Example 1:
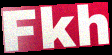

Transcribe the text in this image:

Fkh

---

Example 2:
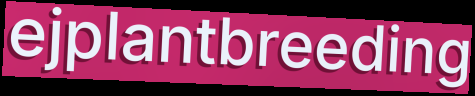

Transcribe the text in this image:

ejplantbreeding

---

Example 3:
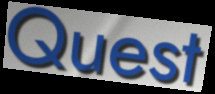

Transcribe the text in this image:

Quest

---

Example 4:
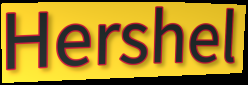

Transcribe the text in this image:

Hershel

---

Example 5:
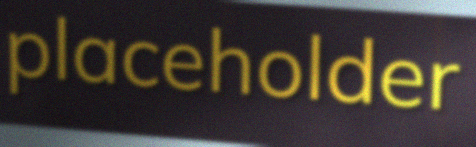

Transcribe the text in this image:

placeholder